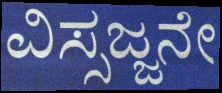
ವಿಸ್ಸಜ್ಜನೇ